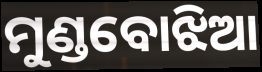
ମୁଣ୍ଡବୋଝିଆ